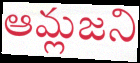
ఆమ్లజని